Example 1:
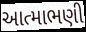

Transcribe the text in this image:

આત્માભણી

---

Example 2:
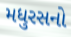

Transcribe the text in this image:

મધુરસનો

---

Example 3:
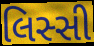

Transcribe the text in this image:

લિસ્સી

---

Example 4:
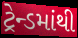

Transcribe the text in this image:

ટ્રેન્ડમાંથી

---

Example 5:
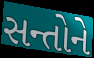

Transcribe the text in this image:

સન્તોને